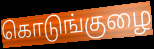
கொடுங்குழை